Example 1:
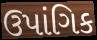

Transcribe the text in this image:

ઉપાંગિક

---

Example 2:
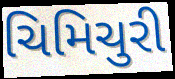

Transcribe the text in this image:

ચિમિચુરી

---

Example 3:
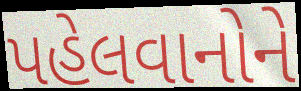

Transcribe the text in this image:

પહેલવાનોને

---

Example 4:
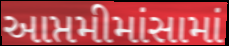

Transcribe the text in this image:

આપ્તમીમાંસામાં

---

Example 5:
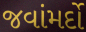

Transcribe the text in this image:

જવાંમર્દો